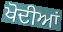
ਖੋਦੀਆਂ